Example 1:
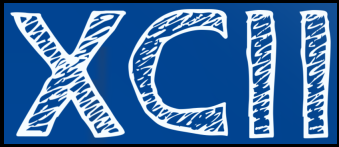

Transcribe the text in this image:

XCII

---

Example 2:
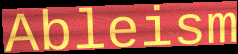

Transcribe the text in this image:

Ableism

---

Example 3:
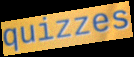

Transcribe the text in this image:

quizzes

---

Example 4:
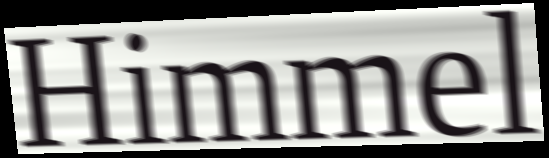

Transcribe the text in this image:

Himmel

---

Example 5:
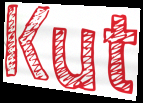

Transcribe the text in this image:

Kut